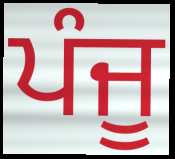
ਪੰਜੂ